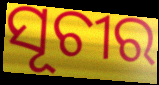
ସୂଚୀର